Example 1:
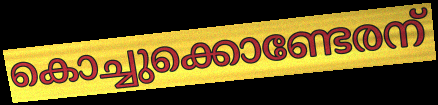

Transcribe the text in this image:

കൊച്ചുക്കൊണ്ടേരന്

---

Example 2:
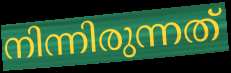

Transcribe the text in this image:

നിന്നിരുന്നത്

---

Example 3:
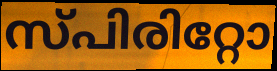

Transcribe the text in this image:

സ്പിരിറ്റോ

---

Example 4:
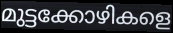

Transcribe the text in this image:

മുട്ടക്കോഴികളെ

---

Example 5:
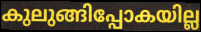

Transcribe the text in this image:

കുലുങ്ങിപ്പോകയില്ല